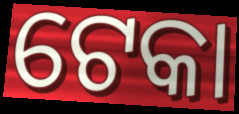
ଟେକା